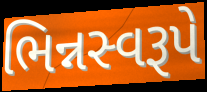
ભિન્નસ્વરૂપે